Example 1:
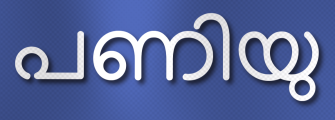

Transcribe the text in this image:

പണിയു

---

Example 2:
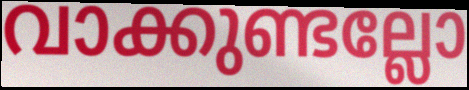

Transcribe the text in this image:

വാക്കുണ്ടല്ലോ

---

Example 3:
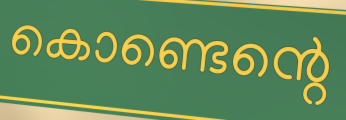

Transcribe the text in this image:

കൊണ്ടെന്റെ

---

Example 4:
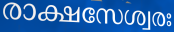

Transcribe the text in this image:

രാക്ഷസേശ്വരഃ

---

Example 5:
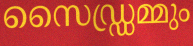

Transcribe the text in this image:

സൈഡ്ഡ്രമ്മും